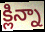
క్లిన్నా